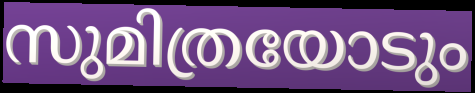
സുമിത്രയോടും